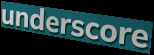
underscore